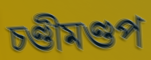
চণ্ডীমণ্ডপ